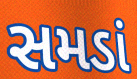
સમડાં